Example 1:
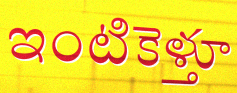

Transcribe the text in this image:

ఇంటికెళ్తూ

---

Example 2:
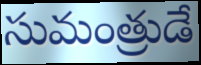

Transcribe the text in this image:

సుమంత్రుడే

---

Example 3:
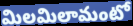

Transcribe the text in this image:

మిలమిలామంటో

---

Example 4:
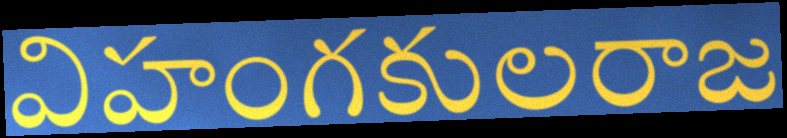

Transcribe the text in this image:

విహంగకులరాజ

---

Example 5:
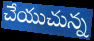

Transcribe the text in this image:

చేయుచున్న